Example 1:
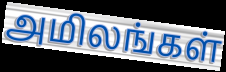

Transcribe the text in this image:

அமிலங்கள்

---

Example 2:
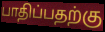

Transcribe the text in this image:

பாதிப்பதற்கு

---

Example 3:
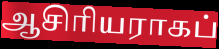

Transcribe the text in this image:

ஆசிரியராகப்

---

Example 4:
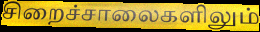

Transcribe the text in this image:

சிறைச்சாலைகளிலும்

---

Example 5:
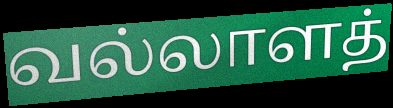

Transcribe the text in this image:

வல்லாளத்